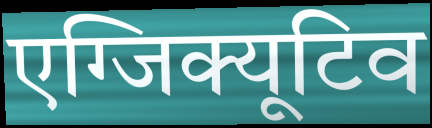
एग्जिक्यूटिव